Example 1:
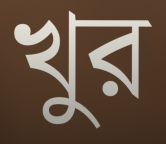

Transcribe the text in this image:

খুর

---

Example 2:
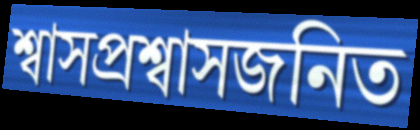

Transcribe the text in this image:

শ্বাসপ্রশ্বাসজনিত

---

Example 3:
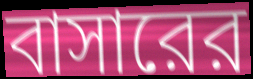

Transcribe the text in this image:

বাসারের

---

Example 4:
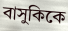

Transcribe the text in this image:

বাসুকিকে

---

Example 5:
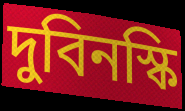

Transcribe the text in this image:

দুবিনস্কি